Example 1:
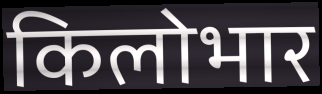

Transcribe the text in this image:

किलोभार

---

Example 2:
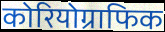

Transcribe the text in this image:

कोरियोग्राफिक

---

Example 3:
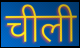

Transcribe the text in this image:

चीली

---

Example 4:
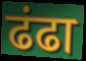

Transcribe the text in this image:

ढंढा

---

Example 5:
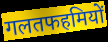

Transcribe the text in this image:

गलतफहमियों